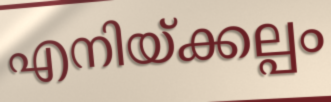
എനിയ്ക്കല്പം